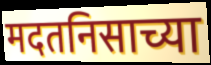
मदतनिसाच्या